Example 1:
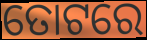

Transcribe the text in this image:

ତୋଟରେ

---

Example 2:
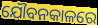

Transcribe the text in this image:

ଯୌବନକାଳରେ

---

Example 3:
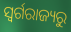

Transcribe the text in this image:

ସ୍ବର୍ଗରାଜ୍ୟରୁ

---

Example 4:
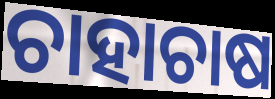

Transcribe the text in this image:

ଚାହାଚାଷ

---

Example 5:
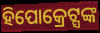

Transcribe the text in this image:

ହିପୋକ୍ରେଟ୍ସଙ୍କ